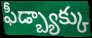
ఫీడ్బ్యాక్కు